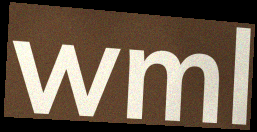
wml